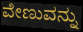
ವೇಣುವನ್ನು